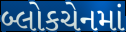
બ્લોકચેનમાં